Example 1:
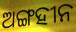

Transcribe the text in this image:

ଅଙ୍ଗହୀନ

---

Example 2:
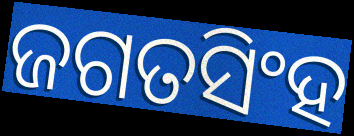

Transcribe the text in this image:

ଜଗତସିଂହ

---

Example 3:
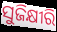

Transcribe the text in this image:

ସୁଜିକ୍ଷୀରି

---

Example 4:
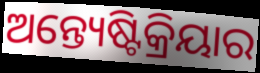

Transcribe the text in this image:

ଅନ୍ତ୍ୟେଷ୍ଟିକ୍ରିୟାର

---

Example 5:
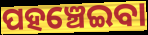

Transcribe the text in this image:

ପହଞ୍ଚେଇବା